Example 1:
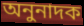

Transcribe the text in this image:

অনুনাদক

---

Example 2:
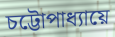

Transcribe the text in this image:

চট্টোপাধ্যায়ে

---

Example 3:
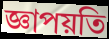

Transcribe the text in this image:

জ্ঞাপয়তি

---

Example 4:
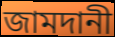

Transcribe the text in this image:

জামদানী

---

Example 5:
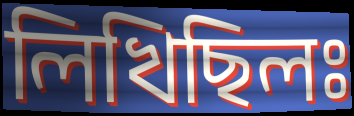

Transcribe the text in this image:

লিখিছিলঃ